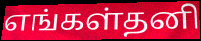
எங்கள்தனி